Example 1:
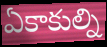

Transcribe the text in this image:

ఏకాకుల్ని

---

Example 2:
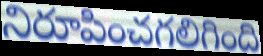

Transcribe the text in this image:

నిరూపించగలిగింది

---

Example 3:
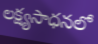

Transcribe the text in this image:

లక్ష్యసాధనలో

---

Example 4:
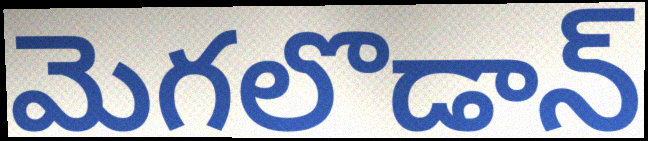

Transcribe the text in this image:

మెగలొడాన్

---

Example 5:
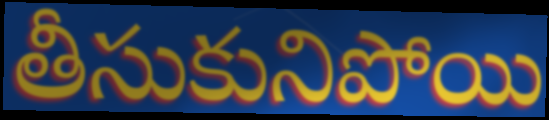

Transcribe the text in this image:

తీసుకునిపోయి